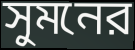
সুমনের